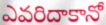
ఎవరిదాకానో